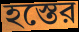
হস্তের